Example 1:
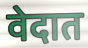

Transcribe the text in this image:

वेदात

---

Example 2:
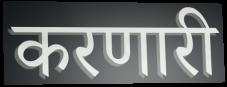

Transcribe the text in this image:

करणारी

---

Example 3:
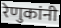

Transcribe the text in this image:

रेणुकांनी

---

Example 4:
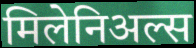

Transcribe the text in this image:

मिलेनिअल्स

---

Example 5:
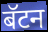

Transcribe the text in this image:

बॅटन